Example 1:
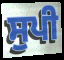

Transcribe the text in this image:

ਸੁਪੀ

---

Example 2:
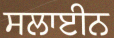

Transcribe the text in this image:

ਸਲਾਈਨ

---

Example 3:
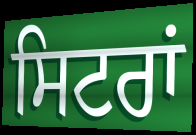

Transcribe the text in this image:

ਸਿਟਰਾਂ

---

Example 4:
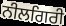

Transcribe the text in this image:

ਨੀਲਗਿਰੀ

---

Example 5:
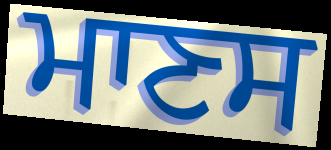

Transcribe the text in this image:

ਮਾਣਸ